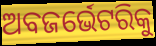
ଅବଜର୍ଭେଟରିକୁ